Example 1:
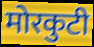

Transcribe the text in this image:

मोरकुटी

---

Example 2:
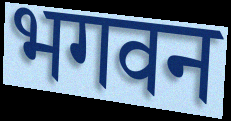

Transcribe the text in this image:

भगवन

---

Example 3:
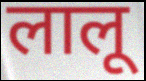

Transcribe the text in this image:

लालू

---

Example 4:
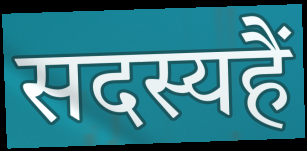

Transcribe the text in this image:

सदस्यहैं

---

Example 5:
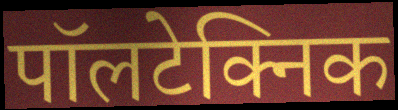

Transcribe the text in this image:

पॉलटेक्निक